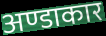
अण्डाकार